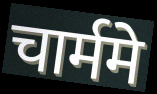
चार्ममे